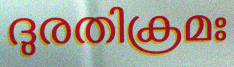
ദുരതിക്രമഃ